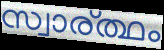
സ്വാര്ത്ഥം